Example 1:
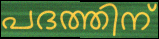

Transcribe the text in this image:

പദത്തിന്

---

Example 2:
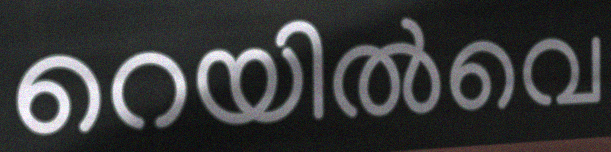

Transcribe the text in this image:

റെയിൽവെ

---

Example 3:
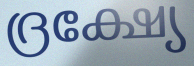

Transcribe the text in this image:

ദ്രക്ഷ്യേ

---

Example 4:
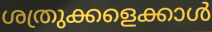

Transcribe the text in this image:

ശത്രുക്കളെക്കാൾ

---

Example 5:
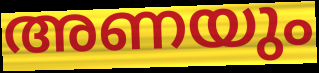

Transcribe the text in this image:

അണയും